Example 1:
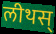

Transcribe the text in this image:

लीथस्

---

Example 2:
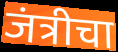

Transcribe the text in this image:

जंत्रीचा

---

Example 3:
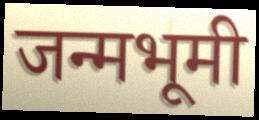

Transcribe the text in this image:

जन्मभूमी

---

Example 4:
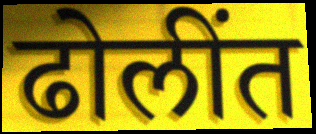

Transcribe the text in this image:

ढोलींत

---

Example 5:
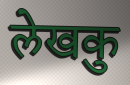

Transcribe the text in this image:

लेखकु